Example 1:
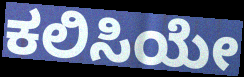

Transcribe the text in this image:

ಕಲಿಸಿಯೇ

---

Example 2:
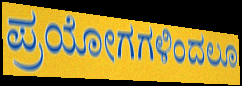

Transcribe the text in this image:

ಪ್ರಯೋಗಗಳಿಂದಲೂ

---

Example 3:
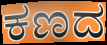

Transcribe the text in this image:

ಕಣದ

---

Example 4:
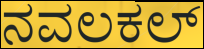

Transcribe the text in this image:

ನವಲಕಲ್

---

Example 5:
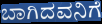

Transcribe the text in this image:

ಬಾಗಿದವನಿಗೆ